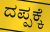
ದಪ್ಪಕ್ಕೆ